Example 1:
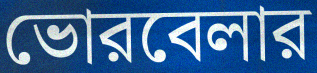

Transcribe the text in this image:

ভোরবেলার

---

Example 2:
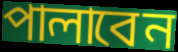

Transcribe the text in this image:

পালাবেন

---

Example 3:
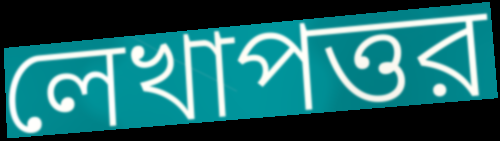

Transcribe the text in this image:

লেখাপত্তর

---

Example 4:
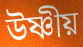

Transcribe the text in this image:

উষ্ণীয়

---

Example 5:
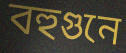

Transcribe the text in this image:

বহুগুনে